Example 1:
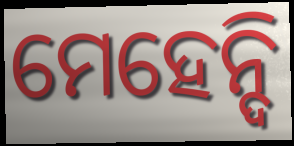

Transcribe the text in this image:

ମେହେନ୍ଦି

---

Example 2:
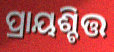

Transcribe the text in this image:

ପ୍ରାୟଶ୍ଚିତ୍ତ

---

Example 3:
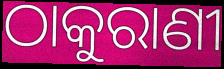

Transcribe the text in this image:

ଠାକୁରାଣୀ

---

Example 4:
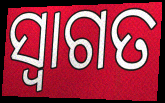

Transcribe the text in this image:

ସ୍ବାଗତ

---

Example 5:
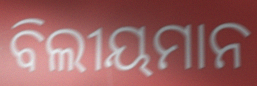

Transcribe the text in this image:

ବିଲୀୟମାନ